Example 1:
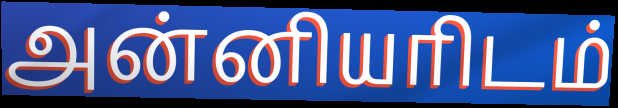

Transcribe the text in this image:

அன்னியரிடம்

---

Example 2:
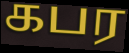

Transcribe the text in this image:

கபர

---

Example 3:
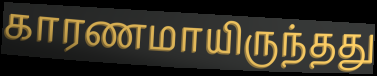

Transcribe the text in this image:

காரணமாயிருந்தது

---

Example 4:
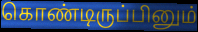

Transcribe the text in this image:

கொண்டிருப்பினும்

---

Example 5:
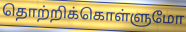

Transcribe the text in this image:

தொற்றிக்கொள்ளுமோ